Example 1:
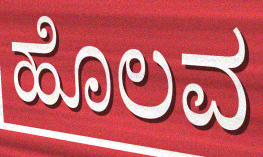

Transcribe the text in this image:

ಹೊಲವ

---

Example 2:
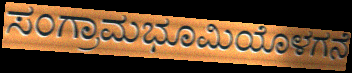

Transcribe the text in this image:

ಸಂಗ್ರಾಮಭೂಮಿಯೊಳಗನೆ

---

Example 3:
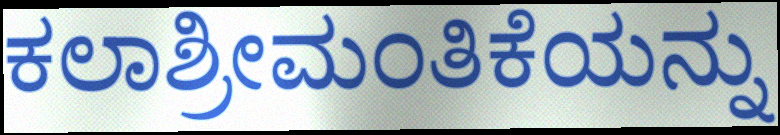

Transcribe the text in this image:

ಕಲಾಶ್ರೀಮಂತಿಕೆಯನ್ನು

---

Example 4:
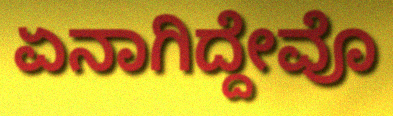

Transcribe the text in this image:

ಏನಾಗಿದ್ದೇವೊ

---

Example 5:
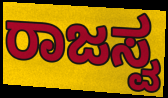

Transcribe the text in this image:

ರಾಜಸ್ವ